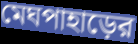
মেঘপাহাড়ের